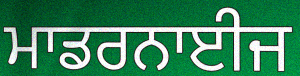
ਮਾਡਰਨਾਈਜ